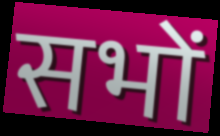
सभों